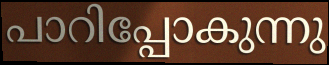
പാറിപ്പോകുന്നു